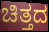
ಚಿತ್ತದ